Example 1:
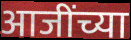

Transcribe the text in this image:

आजींच्या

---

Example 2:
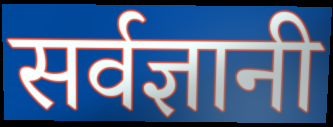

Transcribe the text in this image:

सर्वज्ञानी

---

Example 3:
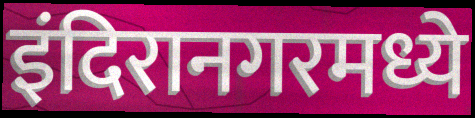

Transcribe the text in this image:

इंदिरानगरमध्ये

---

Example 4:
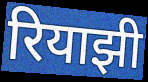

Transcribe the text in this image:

रियाझी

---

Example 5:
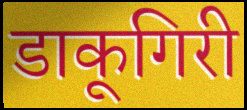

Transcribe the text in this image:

डाकूगिरी